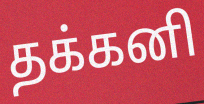
தக்கனி